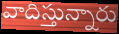
వాదిస్తున్నారు